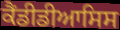
ਕੈਂਡੀਡੀਆਸਿਸ